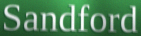
Sandford